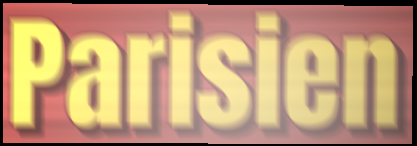
Parisien